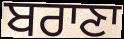
ਬਰਾਣਾ